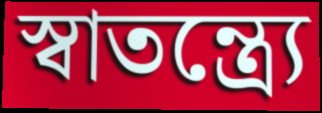
স্বাতন্ত্র্যে